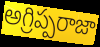
అగ్రిప్పరాజా